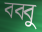
বব্বু